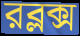
রব্লক্স